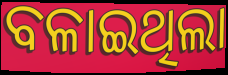
ବଳାଇଥିଲା